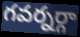
గవర్నర్గా